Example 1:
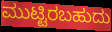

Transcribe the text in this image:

ಮುಟ್ಟಿರಬಹುದು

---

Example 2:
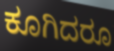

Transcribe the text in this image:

ಕೂಗಿದರೂ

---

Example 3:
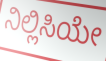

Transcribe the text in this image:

ನಿಲ್ಲಿಸಿಯೇ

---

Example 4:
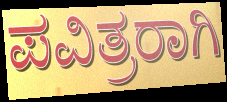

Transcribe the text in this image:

ಪವಿತ್ರರಾಗಿ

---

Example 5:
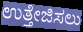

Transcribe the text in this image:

ಉತ್ತೇಜಿಸಲು